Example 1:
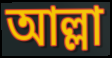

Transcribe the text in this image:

আল্লা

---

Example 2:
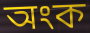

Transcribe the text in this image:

অংক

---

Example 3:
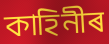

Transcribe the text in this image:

কাহিনীৰ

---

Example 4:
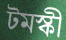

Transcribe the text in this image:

টমস্কী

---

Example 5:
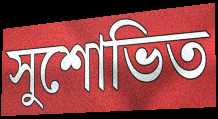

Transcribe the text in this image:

সুশোভিত